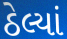
ઠેલ્યાં